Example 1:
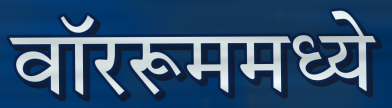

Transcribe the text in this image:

वॉररूममध्ये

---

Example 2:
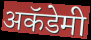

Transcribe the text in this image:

अकॅडेमी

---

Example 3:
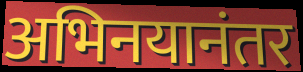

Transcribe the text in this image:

अभिनयानंतर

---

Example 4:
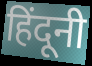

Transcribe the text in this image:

हिंदूनी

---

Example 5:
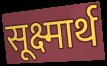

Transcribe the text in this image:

सूक्ष्मार्थ